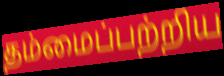
தம்மைப்பற்றிய